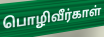
பொழிவீர்காள்